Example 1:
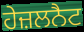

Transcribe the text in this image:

ਹੇਜ਼ਲਨੈਟ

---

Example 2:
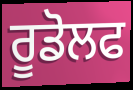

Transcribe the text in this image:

ਰੂਡੋਲਫ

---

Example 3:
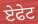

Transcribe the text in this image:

ਏਫੇਟ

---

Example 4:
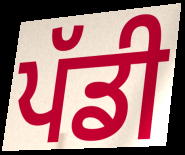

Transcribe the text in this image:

ਪੱਡੀ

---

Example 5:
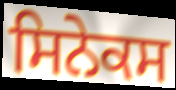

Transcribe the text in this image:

ਸਿਨੇਕਸ